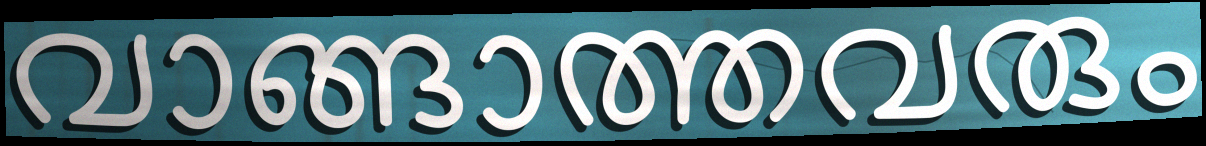
വാങ്ങാത്തവരും